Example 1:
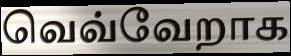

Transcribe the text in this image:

வெவ்வேறாக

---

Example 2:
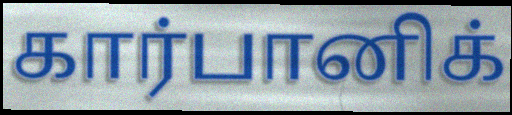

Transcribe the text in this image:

கார்பானிக்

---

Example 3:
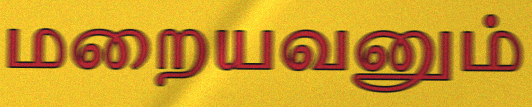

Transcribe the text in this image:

மறையவனும்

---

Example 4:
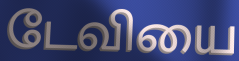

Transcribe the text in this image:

டேவியை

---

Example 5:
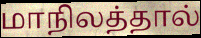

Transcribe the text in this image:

மாநிலத்தால்